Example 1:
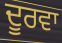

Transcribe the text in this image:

ਦੂਰਵਾ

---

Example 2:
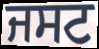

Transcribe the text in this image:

ਜਸਟ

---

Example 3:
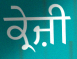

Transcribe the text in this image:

ਕ੍ਰੇਜ਼ੀ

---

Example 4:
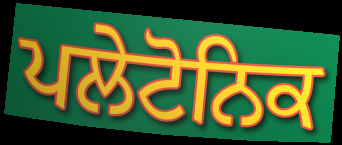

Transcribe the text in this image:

ਪਲੇਟੋਨਿਕ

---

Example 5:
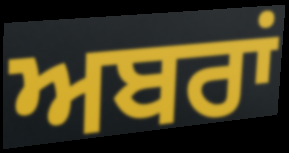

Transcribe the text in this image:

ਅਬਰਾਂ